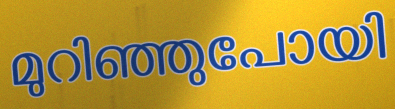
മുറിഞ്ഞുപോയി